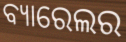
ବ୍ୟାରେଲର